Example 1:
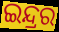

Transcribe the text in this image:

ଇନ୍ଦ୍ରର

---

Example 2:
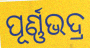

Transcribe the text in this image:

ପୂର୍ଣ୍ଣଭଦ୍ର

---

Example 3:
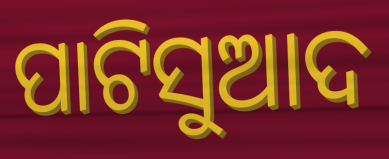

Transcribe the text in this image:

ପାଟିସୁଆଦ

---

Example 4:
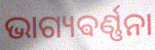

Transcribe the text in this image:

ଭାଗ୍ୟଵର୍ଣ୍ଣନା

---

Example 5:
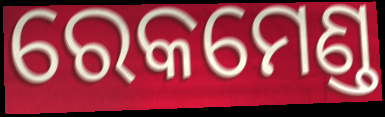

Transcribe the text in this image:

ରେକମେଣ୍ଡ